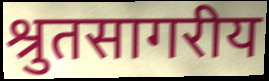
श्रुतसागरीय